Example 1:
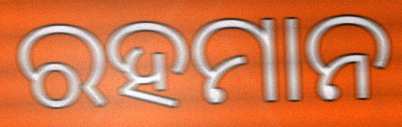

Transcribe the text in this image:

ରହମାନ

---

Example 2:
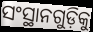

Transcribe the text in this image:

ସଂସ୍ଥାନଗୁଡ଼ିକୁ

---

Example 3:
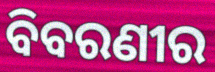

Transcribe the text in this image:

ବିବରଣୀର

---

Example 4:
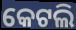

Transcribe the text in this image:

କେଟଲି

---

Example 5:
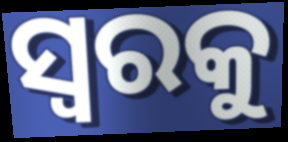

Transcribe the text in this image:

ସ୍ୱରକୁ